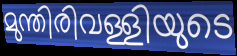
മുന്തിരിവള്ളിയുടെ